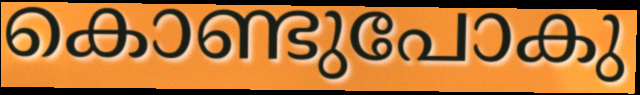
കൊണ്ടുപോകു